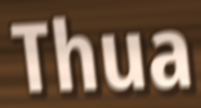
Thua